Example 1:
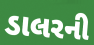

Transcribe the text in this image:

ડાલરની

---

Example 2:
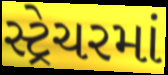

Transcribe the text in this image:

સ્ટ્રેચરમાં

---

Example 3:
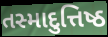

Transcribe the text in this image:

તસ્માદુત્તિષ્ઠ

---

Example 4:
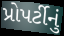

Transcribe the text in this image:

પ્રોપર્ટીનું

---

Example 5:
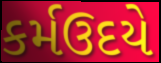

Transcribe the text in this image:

કર્મઉદયે